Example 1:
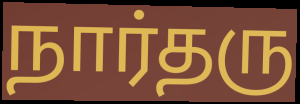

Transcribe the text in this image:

நார்தரு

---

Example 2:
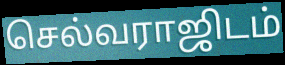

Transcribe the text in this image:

செல்வராஜிடம்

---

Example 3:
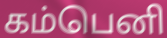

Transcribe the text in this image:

கம்பெனி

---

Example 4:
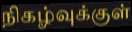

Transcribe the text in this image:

நிகழ்வுக்குள்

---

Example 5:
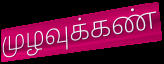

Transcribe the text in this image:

முழவுக்கண்